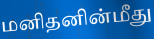
மனிதனின்மீது